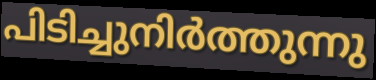
പിടിച്ചുനിർത്തുന്നു